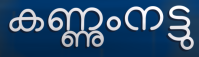
കണ്ണുംനട്ടു